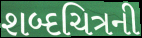
શબ્દચિત્રની